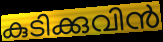
കുടിക്കുവിൻ